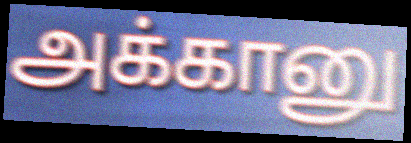
அக்கானு